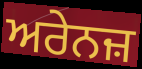
ਅਰੇਨਜ਼